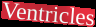
Ventricles